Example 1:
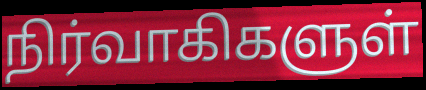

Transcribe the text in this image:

நிர்வாகிகளுள்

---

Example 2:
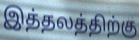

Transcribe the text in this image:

இத்தலத்திற்கு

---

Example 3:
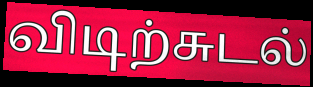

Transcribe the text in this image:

விடிற்சுடல்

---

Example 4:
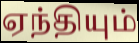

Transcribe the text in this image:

ஏந்தியும்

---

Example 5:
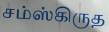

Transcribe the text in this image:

சம்ஸ்கிருத